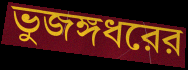
ভুজঙ্গধরের